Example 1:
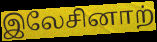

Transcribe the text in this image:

இலேசினாற்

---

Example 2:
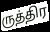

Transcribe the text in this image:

ருத்திர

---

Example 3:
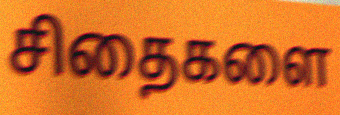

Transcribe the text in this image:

சிதைகளை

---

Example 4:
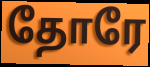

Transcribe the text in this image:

தோரே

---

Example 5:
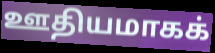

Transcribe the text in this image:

ஊதியமாகக்